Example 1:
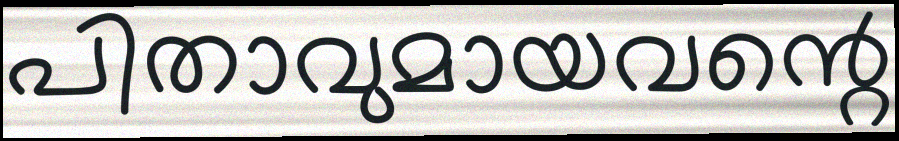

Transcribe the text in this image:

പിതാവുമായവന്റെ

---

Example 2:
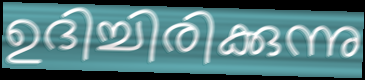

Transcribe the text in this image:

ഉദിച്ചിരിക്കുന്നു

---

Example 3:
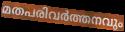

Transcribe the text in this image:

മതപരിവർത്തനവും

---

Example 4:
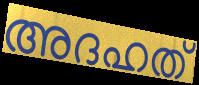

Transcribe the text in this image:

അദഹത്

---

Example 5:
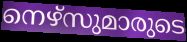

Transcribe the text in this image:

നെഴ്സുമാരുടെ